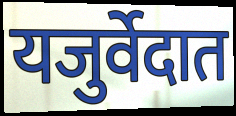
यजुर्वेदात